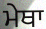
ਮੇਥਾ